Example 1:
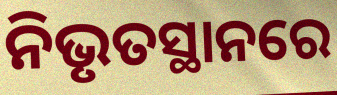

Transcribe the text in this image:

ନିଭୃତସ୍ଥାନରେ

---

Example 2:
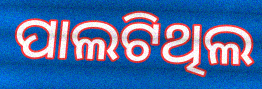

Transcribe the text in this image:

ପାଲଟିଥିଲ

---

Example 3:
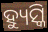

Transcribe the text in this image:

ହ୍ୟୁସ୍କି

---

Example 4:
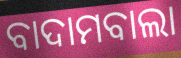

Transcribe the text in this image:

ବାଦାମବାଲା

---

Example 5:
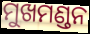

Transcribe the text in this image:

ମୁଖମଣ୍ଡନ